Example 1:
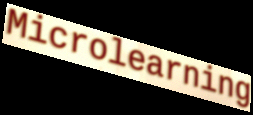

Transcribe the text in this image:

Microlearning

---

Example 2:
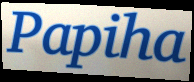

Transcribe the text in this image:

Papiha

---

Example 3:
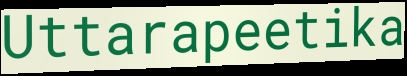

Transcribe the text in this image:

Uttarapeetika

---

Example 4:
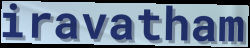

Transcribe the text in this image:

iravatham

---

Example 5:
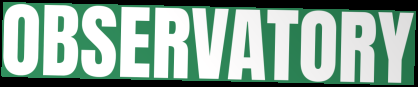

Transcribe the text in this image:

OBSERVATORY